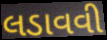
લડાવવી